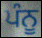
ਪੰਨੂ